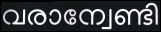
വരാന്വേണ്ടി